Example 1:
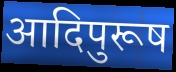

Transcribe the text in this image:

आदिपुरूष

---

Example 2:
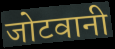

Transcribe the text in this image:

जोटवानी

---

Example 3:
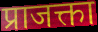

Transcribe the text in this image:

प्राजक्ता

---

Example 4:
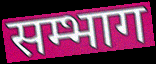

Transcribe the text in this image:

सम्भाग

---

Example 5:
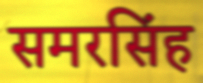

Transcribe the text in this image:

समरसिंह